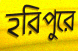
হরিপুরে